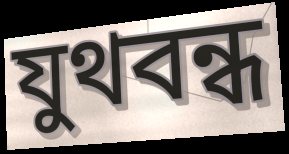
যুথবন্ধ